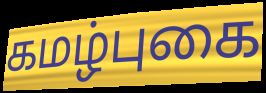
கமழ்புகை